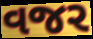
વજર